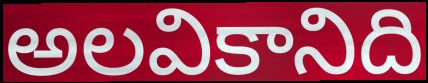
అలవికానిది